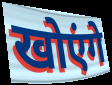
खोएंगे